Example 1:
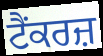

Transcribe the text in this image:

ਟੈਂਕਰਜ਼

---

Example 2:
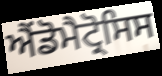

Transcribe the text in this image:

ਐਂਡੋਮੈਟ੍ਰੋਸਿਸ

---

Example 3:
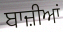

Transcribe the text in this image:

ਬਾਜ਼ੀਆਂ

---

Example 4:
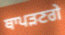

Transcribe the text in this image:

ਥਾਪੜਣਗੇ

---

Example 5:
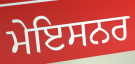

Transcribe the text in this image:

ਮੇਇਸਨਰ